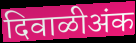
दिवाळीअंक